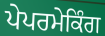
ਪੇਪਰਮੇਕਿੰਗ